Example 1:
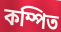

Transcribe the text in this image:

কম্পিত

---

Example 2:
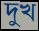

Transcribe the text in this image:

দুখ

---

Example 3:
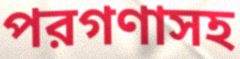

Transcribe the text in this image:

পরগণাসহ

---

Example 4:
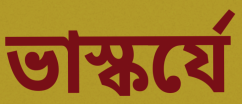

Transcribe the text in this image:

ভাস্কর্যে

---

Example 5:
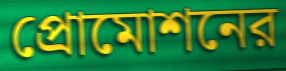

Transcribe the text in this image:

প্রোমোশনের